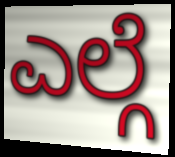
ಎಲ್ಗೆ